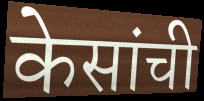
केसांची